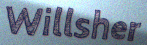
Willsher